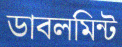
ডাবলমিন্ট